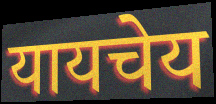
यायचेय